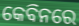
କେବିନରେ